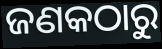
ଜଣକଠାରୁ